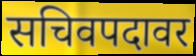
सचिवपदावर